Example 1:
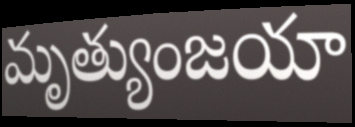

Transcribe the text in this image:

మృత్యుంజయా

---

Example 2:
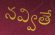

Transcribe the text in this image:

నవ్వితే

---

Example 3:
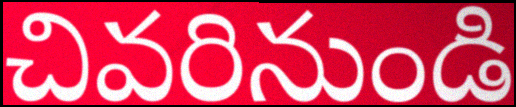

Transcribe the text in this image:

చివరినుండి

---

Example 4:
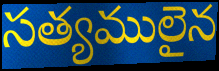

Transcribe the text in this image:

సత్యములైన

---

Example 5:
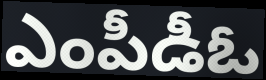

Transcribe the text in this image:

ఎంపీడీఓ